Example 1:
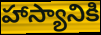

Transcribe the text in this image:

హాస్యానికి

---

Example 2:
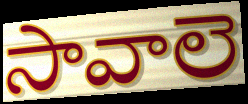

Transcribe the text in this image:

సావాలె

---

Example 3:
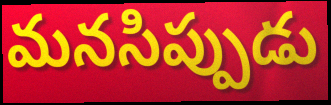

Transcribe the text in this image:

మనసిప్పుడు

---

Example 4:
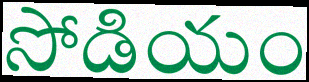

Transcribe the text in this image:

సోడియం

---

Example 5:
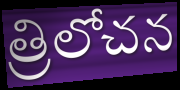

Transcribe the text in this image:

త్రిలోచన